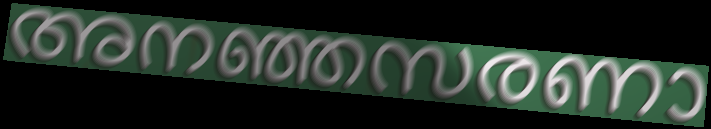
അനഞ്ഞസരണാ